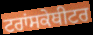
ਟਰਾਂਸਕੇਥੀਟਰ